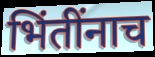
भिंतींनाच